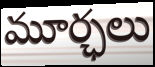
మూర్ఛలు